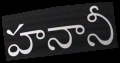
హనానీ